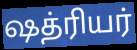
ஷத்ரியர்